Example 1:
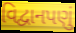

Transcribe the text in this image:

વિદ્વાનપણું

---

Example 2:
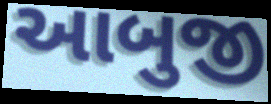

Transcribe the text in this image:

આબુજી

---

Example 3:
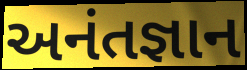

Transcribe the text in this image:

અનંતજ્ઞાન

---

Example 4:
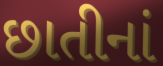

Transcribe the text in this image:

છાતીનાં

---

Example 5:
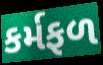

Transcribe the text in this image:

કર્મફળ